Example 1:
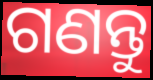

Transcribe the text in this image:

ଗଣନ୍ତୁ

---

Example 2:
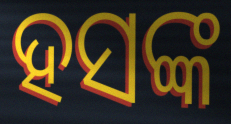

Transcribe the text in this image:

ହସଙ୍କ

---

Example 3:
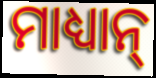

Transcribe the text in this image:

ମାଧ୍ୟାନ୍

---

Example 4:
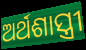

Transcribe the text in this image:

ଅର୍ଥଶାସ୍ତ୍ରୀ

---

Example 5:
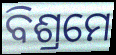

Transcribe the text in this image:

ବିଶ୍ରମେ